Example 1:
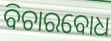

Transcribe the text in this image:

ବିଚାରବୋଧ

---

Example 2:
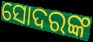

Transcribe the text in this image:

ସୋଦରଙ୍କ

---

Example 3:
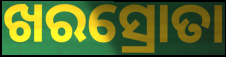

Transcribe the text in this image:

ଖରସ୍ରୋତା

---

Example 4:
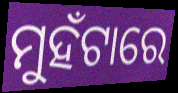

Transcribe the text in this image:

ମୁହଁଟାରେ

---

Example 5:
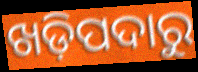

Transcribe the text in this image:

ଖଡ଼ିପଦାରୁ